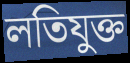
লতিযুক্ত